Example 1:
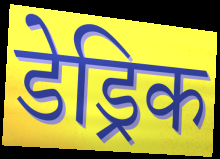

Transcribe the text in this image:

डेड्रिक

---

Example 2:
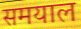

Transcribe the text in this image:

समयाल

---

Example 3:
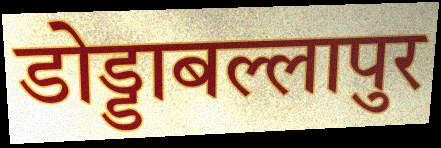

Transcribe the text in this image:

डोड्डाबल्लापुर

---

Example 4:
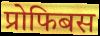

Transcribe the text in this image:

प्रोफिबस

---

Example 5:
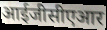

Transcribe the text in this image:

आईजीसीएआर